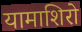
यामाशिरो